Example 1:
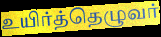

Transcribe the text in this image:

உயிர்த்தெழுவர்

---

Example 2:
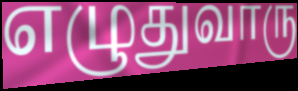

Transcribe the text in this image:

எழுதுவாரு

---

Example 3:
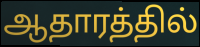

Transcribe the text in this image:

ஆதாரத்தில்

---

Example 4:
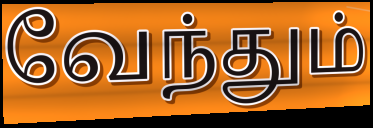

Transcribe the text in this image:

வேந்தும்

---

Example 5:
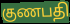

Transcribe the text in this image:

குணபதி